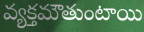
వ్యక్తమౌతుంటాయి